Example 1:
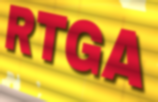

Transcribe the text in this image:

RTGA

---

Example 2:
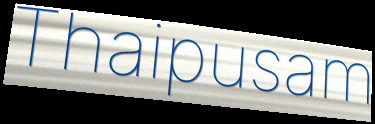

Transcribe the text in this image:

Thaipusam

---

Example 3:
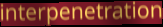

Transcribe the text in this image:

interpenetration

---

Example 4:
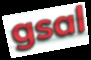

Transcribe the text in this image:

gsal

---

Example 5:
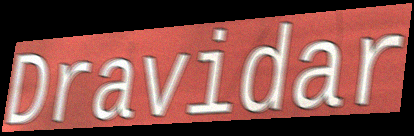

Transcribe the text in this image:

Dravidar